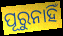
ପୂରୁନାହିଁ